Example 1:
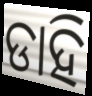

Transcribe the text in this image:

ଡାହି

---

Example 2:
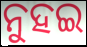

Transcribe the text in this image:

ନୁହଇ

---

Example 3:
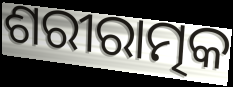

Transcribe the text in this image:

ଶରୀରାତ୍ମକ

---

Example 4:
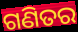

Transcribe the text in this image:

ଗଣିତର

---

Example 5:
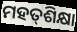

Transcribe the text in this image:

ମହତ୍‌ଶିକ୍ଷା